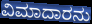
ವಿಮಾದಾರನು